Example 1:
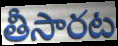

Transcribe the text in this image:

తీసారట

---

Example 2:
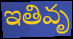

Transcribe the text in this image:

ఇతివృ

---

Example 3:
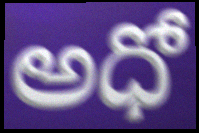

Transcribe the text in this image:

అధో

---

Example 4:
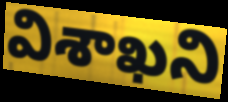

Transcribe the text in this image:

విశాఖని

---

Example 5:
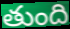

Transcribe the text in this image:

తుంది